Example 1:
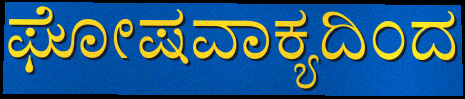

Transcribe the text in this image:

ಘೋಷವಾಕ್ಯದಿಂದ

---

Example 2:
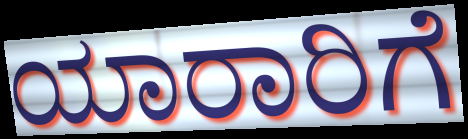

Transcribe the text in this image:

ಯಾರಾರಿಗೆ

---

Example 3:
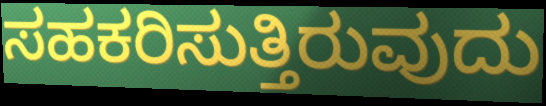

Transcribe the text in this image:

ಸಹಕರಿಸುತ್ತಿರುವುದು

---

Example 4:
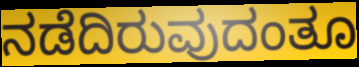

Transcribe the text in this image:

ನಡೆದಿರುವುದಂತೂ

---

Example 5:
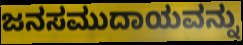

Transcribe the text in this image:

ಜನಸಮುದಾಯವನ್ನು